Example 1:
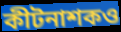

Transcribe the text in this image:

কীটনাশকও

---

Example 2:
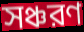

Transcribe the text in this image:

সঞ্চরণ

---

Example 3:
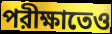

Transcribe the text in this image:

পরীক্ষাতেও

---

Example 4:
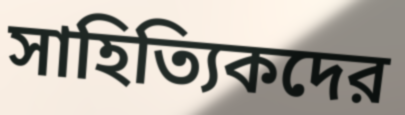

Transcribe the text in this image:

সাহিত্যিকদের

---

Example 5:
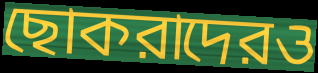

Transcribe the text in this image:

ছোকরাদেরও